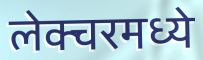
लेक्चरमध्ये